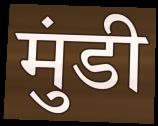
मुंडी